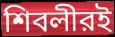
শিবলীরই